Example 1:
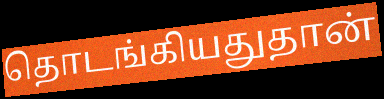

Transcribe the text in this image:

தொடங்கியதுதான்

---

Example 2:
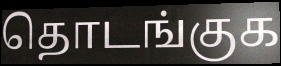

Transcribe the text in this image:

தொடங்குக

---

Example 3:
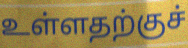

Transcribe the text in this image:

உள்ளதற்குச்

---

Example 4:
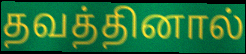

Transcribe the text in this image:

தவத்தினால்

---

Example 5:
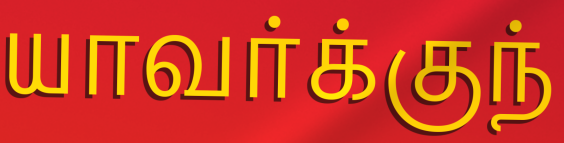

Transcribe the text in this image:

யாவர்க்குந்